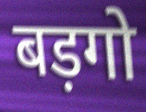
बड़गो